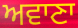
ਅਵਾਣਾ